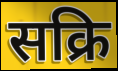
सक्रि